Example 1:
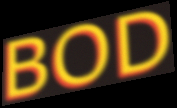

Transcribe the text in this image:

BOD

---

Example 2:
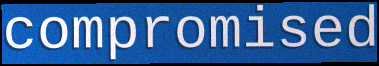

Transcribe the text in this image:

compromised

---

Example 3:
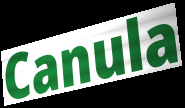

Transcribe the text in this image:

Canula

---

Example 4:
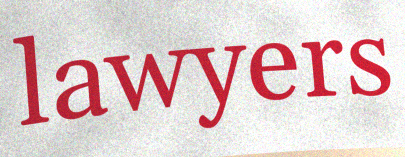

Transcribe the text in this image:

lawyers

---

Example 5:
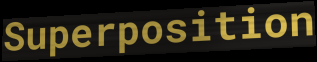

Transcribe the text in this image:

Superposition